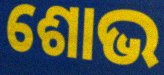
ଶୋଭ